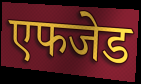
एफजेड